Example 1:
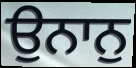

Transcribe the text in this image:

ਉਨਾਨੁ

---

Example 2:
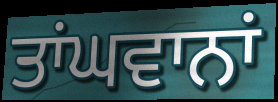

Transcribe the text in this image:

ਤਾਂਘਵਾਨਾਂ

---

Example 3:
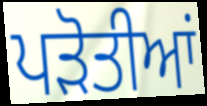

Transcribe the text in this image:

ਪੜੋਤੀਆਂ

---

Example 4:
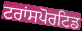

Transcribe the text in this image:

ਟਰਾਂਸਪੋਰਟਿਡ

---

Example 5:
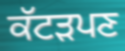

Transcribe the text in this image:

ਕੱਟੜਪਣ